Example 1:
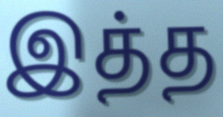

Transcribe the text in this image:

இத்த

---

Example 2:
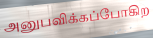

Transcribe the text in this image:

அனுபவிக்கப்போகிற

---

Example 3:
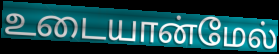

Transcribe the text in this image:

உடையான்மேல்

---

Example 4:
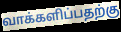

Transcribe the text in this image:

வாக்களிப்பதற்கு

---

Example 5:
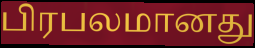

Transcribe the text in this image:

பிரபலமானது